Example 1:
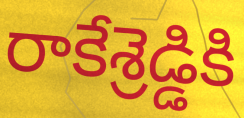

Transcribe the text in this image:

రాకేశ్రెడ్డికి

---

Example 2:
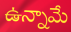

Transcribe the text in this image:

ఉన్నామే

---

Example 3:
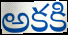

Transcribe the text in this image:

అకకి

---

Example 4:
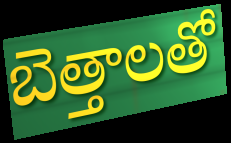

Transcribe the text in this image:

బెత్తాలతో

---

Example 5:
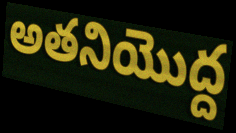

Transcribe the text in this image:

అతనియొద్ద